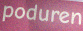
poduren